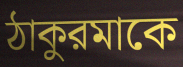
ঠাকুরমাকে